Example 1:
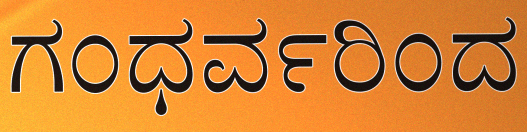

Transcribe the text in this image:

ಗಂಧರ್ವರಿಂದ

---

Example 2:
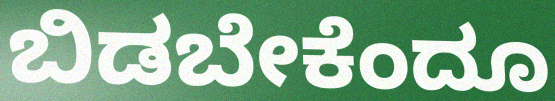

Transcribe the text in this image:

ಬಿಡಬೇಕೆಂದೂ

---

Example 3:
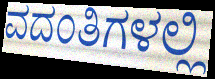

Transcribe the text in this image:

ವದಂತಿಗಳಲ್ಲಿ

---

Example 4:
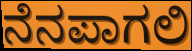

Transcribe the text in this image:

ನೆನಪಾಗಲಿ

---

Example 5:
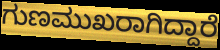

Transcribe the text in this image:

ಗುಣಮುಖರಾಗಿದ್ದಾರೆ